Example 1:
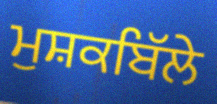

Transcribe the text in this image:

ਮੁਸ਼ਕਬਿੱਲੇ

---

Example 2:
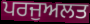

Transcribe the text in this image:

ਪਰਜੁਅਲਤ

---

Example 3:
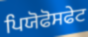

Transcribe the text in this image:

ਪਿਯੋਫੋਸਫੇਟ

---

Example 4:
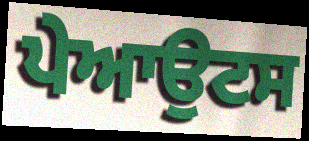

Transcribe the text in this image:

ਪੇਆਉਟਸ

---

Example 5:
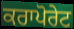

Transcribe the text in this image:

ਕਰਾਪੋਰੇਟ